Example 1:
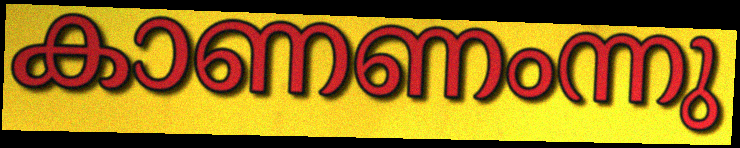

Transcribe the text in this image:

കാണണംന്നു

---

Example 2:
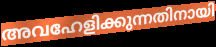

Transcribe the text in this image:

അവഹേളിക്കുന്നതിനായി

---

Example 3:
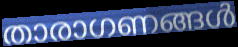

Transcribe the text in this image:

താരാഗണങ്ങൾ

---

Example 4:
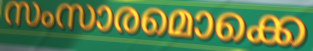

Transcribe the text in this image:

സംസാരമൊക്കെ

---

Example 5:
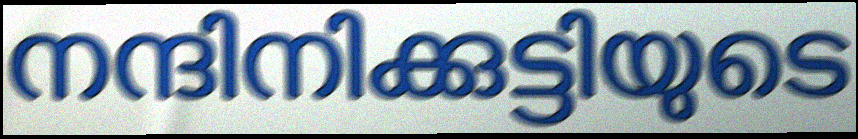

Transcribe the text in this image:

നന്ദിനിക്കുട്ടിയുടെ